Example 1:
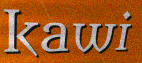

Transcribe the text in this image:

kawi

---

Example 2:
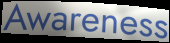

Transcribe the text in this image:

Awareness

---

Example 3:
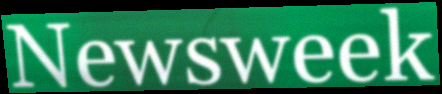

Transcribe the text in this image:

Newsweek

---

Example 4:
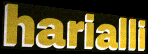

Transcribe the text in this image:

harialli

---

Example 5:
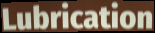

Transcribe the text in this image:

Lubrication